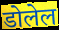
डोलेल